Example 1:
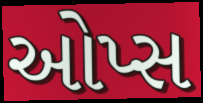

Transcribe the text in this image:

ઓપ્સ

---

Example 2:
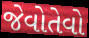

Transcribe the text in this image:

જેવોતેવો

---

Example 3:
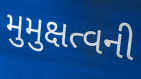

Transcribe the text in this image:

મુમુક્ષત્વની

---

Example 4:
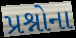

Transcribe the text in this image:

પ્રશ્નોના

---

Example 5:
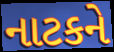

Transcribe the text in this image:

નાટકને